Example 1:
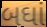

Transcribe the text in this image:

બઘાં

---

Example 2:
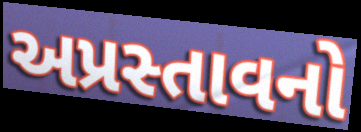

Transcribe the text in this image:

અપ્રસ્તાવનો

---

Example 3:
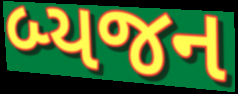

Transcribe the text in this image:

બ્યજન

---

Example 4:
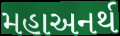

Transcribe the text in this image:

મહાઅનર્થ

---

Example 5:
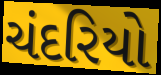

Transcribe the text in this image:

ચંદરિયો